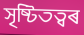
সৃষ্টিতত্বৰ